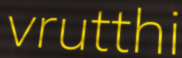
vrutthi